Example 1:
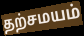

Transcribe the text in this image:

தற்சமயம்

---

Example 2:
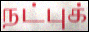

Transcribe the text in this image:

நட்புக்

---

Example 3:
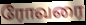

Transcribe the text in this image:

ரோவரை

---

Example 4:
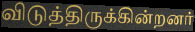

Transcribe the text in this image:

விடுத்திருக்கின்றனர்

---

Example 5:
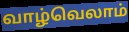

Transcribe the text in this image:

வாழ்வெலாம்